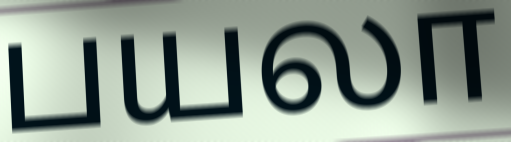
பயலா